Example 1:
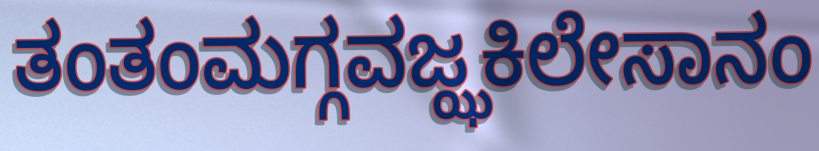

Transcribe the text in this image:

ತಂತಂಮಗ್ಗವಜ್ಝಕಿಲೇಸಾನಂ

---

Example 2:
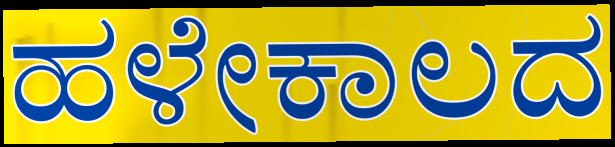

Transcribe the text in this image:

ಹಳೇಕಾಲದ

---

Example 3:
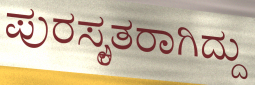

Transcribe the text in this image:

ಪುರಸ್ಕೃತರಾಗಿದ್ದು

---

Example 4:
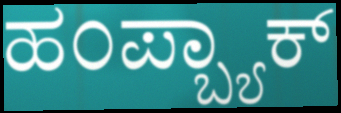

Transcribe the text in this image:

ಹಂಪ್ಬ್ಯಾಕ್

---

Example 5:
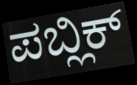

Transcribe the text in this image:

ಪಬ್ಲಿಕ್